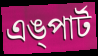
এঙ্পার্ট